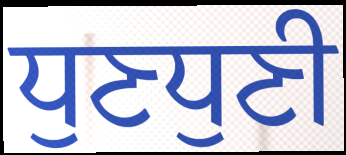
ਧੁਣਧੁਣੀ